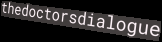
thedoctorsdialogue